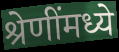
श्रेणींमध्ये